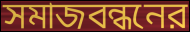
সমাজবন্ধনের